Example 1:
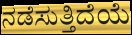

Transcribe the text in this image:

ನಡೆಸುತ್ತಿದೆಯೆ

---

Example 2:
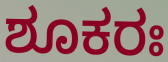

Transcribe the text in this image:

ಶೂಕರಃ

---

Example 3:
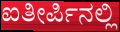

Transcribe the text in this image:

ಐತೀರ್ಪಿನಲ್ಲಿ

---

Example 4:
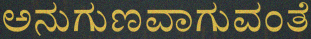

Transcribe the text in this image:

ಅನುಗುಣವಾಗುವಂತೆ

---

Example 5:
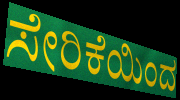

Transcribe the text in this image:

ಸೇರಿಕೆಯಿಂದ